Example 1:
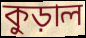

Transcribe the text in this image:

কুড়াল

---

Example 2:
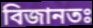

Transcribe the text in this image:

বিজানতঃ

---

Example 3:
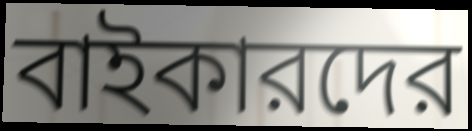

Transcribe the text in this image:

বাইকারদের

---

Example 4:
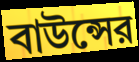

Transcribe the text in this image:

বাউন্সের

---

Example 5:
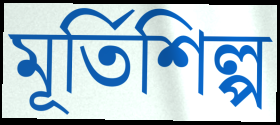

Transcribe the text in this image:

মূর্তিশিল্প